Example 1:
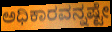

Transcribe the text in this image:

ಅಧಿಕಾರವನ್ನಷ್ಟೇ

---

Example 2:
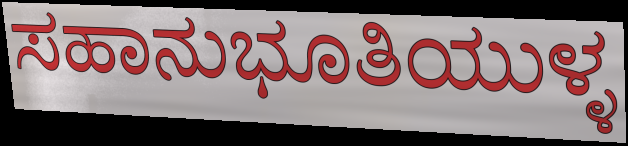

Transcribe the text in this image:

ಸಹಾನುಭೂತಿಯುಳ್ಳ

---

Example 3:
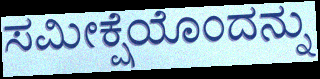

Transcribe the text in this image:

ಸಮೀಕ್ಷೆಯೊಂದನ್ನು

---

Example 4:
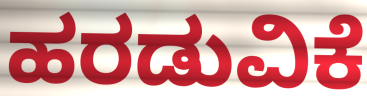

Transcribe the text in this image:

ಹರಡುವಿಕೆ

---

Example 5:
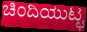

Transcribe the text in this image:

ಚಿಂದಿಯುಟ್ಟ